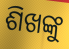
ଶିଖଙ୍କୁ